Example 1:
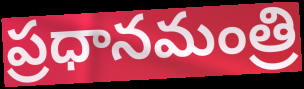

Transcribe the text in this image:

ప్రధానమంత్రి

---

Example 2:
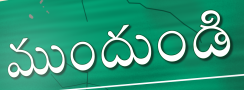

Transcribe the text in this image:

ముందుండి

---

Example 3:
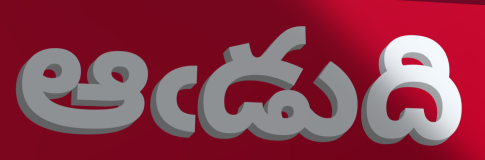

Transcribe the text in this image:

ఆఁడుది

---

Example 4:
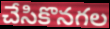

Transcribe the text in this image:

చేసికొనగల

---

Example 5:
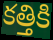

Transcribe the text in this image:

కత్తికి